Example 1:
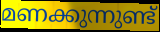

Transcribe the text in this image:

മണക്കുന്നുണ്ട്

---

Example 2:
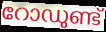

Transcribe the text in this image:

റോഡുണ്ട്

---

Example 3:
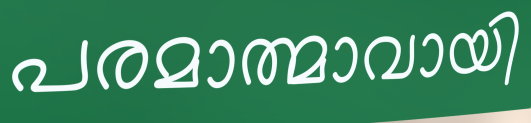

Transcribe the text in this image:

പരമാത്മാവായി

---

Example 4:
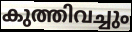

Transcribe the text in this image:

കുത്തിവച്ചും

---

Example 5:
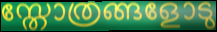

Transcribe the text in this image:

സ്തോത്രങ്ങളോടു